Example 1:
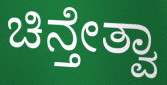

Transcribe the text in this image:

ಚಿನ್ತೇತ್ವಾ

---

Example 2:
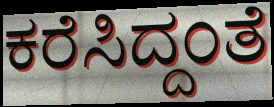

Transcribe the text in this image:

ಕರೆಸಿದ್ದಂತೆ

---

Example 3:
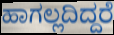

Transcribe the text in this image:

ಹಾಗಲ್ಲದಿದ್ದರೆ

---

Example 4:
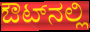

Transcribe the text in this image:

ಔಟ್‌ನಲ್ಲಿ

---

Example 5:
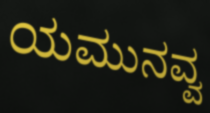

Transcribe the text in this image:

ಯಮುನವ್ವ